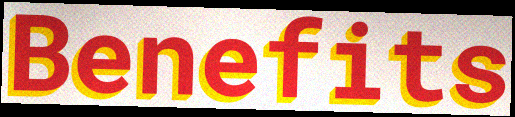
Benefits